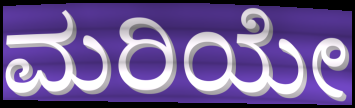
ಮರಿಯೇ